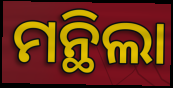
ମନ୍ଥିଲା